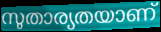
സുതാര്യതയാണ്